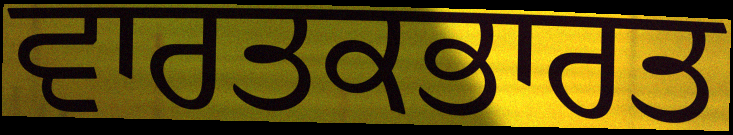
ਵਾਰਤਕਭਾਰਤ